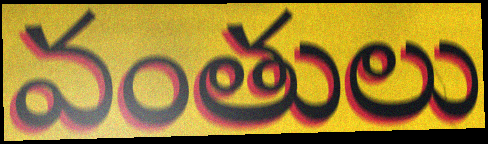
వంతులు